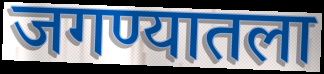
जगण्यातला